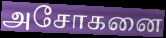
அசோகனை